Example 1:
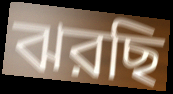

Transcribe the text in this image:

ঝরছি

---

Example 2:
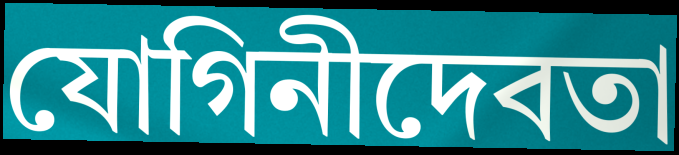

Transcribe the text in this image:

যোগিনীদেবতা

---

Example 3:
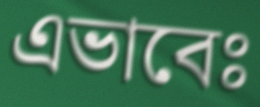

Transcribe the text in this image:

এভাবেঃ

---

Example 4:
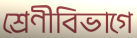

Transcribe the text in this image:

শ্রেণীবিভাগে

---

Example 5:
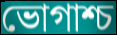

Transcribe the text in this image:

ভোগাশ্চ